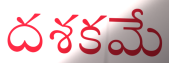
దశకమే